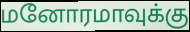
மனோரமாவுக்கு